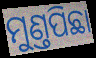
ମୁଣ୍ତପିଛା